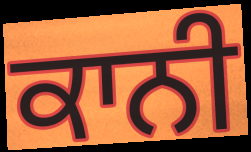
ਕਾਨੀ